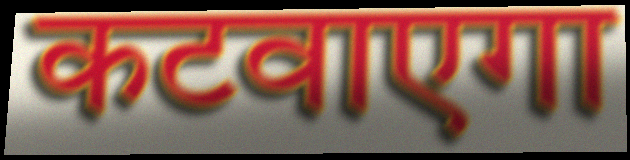
कटवाएगा